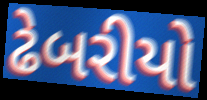
ઢેબરીયો